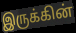
இருக்கின்